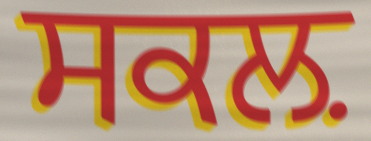
ਸਕਲ਼